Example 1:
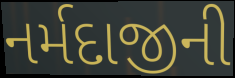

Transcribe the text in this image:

નર્મદાજીની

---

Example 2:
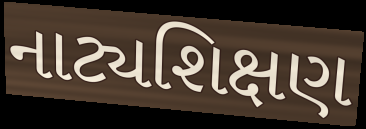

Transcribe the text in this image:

નાટ્યશિક્ષણ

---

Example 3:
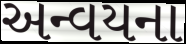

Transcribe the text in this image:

અન્વયના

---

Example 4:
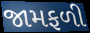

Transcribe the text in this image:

જામફળી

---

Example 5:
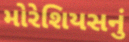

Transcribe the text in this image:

મોરેશિયસનું